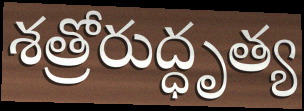
శత్రోరుద్ధృత్య